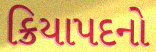
ક્રિયાપદનો